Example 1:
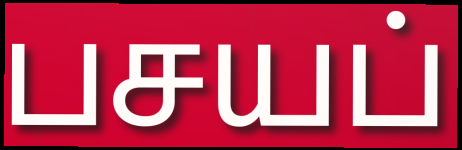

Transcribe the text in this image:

பசயப்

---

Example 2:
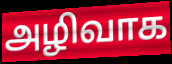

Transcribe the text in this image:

அழிவாக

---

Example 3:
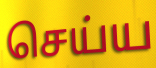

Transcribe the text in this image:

செய்ய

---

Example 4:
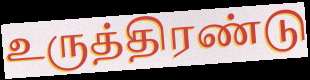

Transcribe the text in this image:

உருத்திரண்டு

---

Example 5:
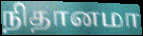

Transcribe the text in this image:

நிதானமா